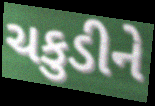
ચકુડીને